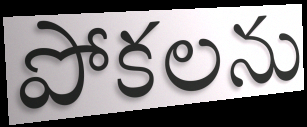
పోకలను